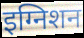
इग्निशन